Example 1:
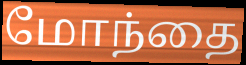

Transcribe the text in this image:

மோந்தை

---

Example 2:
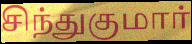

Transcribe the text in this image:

சிந்துகுமார்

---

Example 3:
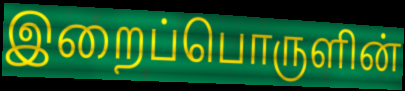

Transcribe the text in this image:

இறைப்பொருளின்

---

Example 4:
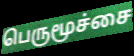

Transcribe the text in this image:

பெருமூச்சை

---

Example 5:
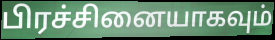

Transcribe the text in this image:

பிரச்சினையாகவும்